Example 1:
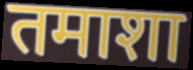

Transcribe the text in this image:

तमाशा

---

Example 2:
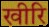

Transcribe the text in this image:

खीरि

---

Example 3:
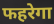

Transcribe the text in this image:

फहरेगा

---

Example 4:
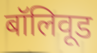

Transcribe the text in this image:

बॉलिवूड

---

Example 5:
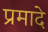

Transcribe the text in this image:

प्रमादे